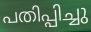
പതിപ്പിച്ചു